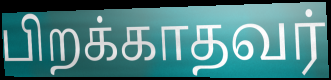
பிறக்காதவர்